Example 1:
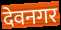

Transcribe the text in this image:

देवनगर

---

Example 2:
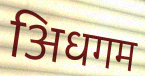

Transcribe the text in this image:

अिधगम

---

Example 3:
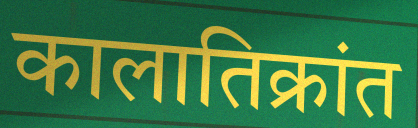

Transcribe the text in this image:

कालातिक्रांत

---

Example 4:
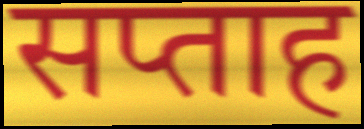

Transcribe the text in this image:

सप्‍ताह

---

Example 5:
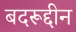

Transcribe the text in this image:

बदरूद्दीन